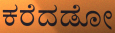
ಕರೆದಡೋ